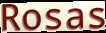
Rosas